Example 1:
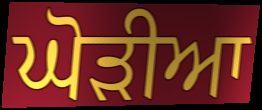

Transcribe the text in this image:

ਘੋੜੀਆ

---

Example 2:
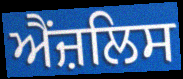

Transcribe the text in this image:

ਐਂਜ਼ਲਿਸ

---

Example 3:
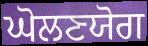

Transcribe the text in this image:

ਘੋਲਣਯੋਗ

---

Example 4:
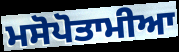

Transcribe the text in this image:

ਮਸੋਪੋਤਾਮੀਆ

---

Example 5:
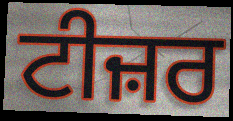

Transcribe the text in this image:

ਟੀਜ਼ਰ